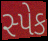
સ્પેક